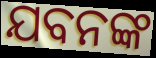
ଯବନଙ୍କ